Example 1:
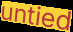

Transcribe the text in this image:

untied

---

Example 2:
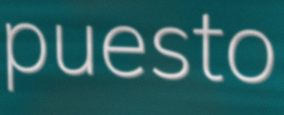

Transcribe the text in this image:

puesto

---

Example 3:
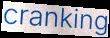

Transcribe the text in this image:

cranking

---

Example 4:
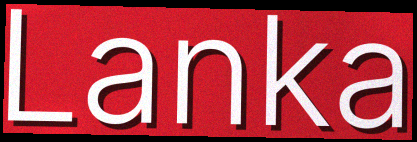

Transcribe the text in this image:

Lanka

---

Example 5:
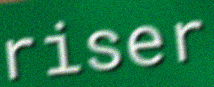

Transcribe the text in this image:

riser